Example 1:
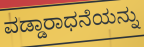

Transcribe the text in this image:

ವಡ್ಡಾರಾಧನೆಯನ್ನು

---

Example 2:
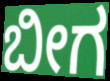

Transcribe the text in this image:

ಬೀಗ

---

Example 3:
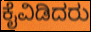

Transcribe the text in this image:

ಕೈವಿಡಿದರು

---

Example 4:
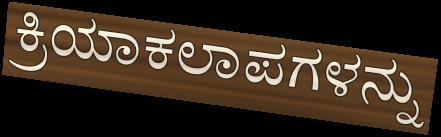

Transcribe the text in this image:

ಕ್ರಿಯಾಕಲಾಪಗಳನ್ನು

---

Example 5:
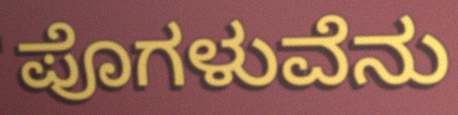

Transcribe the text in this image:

ಪೊಗಳುವೆನು